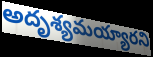
అదృశ్యమయ్యారని